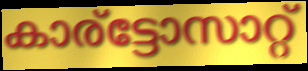
കാര്ട്ടോസാറ്റ്